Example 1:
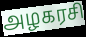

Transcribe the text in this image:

அழகரசி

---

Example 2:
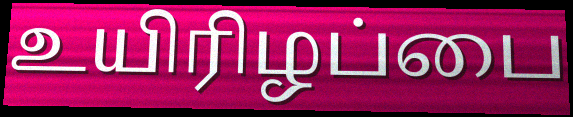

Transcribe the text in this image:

உயிரிழப்பை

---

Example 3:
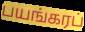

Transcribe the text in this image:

பயங்கரப்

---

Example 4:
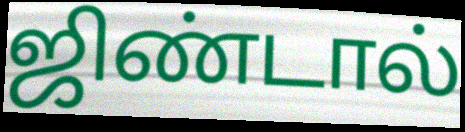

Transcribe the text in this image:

ஜிண்டால்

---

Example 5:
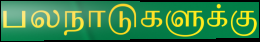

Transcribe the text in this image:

பலநாடுகளுக்கு